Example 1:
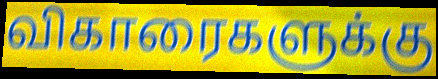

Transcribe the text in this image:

விகாரைகளுக்கு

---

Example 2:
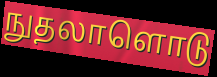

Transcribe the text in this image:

நுதலாளொடு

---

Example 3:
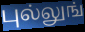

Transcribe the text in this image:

புல்லுங்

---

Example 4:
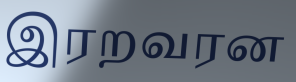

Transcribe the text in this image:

இரறவரன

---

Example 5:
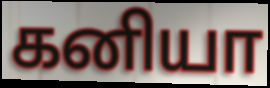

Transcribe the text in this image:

கனியா